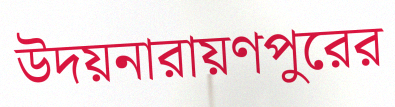
উদয়নারায়ণপুরের